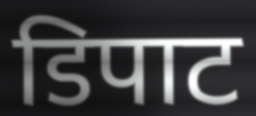
डिपाट